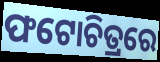
ଫଟୋଚିତ୍ରରେ